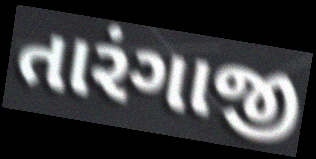
તારંગાજી